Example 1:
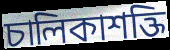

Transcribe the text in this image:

চালিকাশক্তি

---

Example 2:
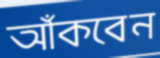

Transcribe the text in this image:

আঁকবেন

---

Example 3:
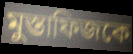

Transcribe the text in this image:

মুস্তাফিজকে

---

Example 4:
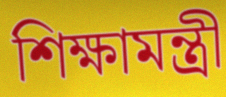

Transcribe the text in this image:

শিক্ষামন্ত্রী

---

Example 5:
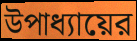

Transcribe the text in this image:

উপাধ্যায়ের